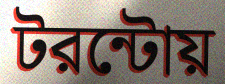
টরন্টোয়